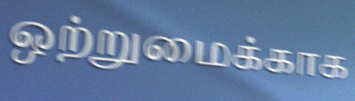
ஒற்றுமைக்காக